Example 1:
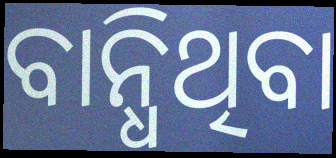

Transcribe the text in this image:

ବାନ୍ଧିଥିବା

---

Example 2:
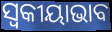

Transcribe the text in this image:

ସ୍ୱକୀୟାଭାବ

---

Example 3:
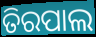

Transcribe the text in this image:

ତିରପାଲ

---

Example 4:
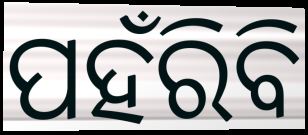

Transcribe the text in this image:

ପହଁରିବି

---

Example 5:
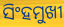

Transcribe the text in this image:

ସିଂହମୁଖୀ